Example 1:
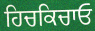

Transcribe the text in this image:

ਹਿਚਕਿਚਾਓ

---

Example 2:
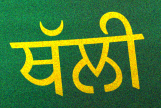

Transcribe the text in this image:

ਥੱਲੀ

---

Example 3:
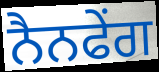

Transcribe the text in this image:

ਨੈਨਫੇਂਗ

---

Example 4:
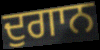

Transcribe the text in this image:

ਦੁਗਾਨ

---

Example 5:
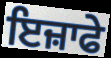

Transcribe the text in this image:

ਇਜ਼ਾਫੇ